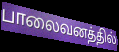
பாலைவனத்தில்